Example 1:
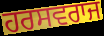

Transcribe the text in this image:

ਹਰਸਵਰਾਜ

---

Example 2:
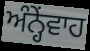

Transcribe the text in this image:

ਅੰਨ੍ਹੇਂਵਾਹ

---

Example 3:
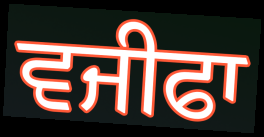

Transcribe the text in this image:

ਵਜੀਫਾ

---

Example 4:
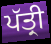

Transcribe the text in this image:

ਪੱਤ੍ਰੀ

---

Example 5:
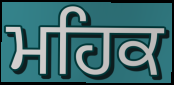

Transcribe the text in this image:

ਮਹਿਕ